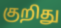
குறிது